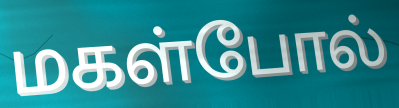
மகள்போல்